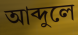
আব্দুলে